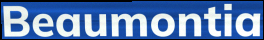
Beaumontia